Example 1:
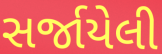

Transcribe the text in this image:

સર્જાયેલી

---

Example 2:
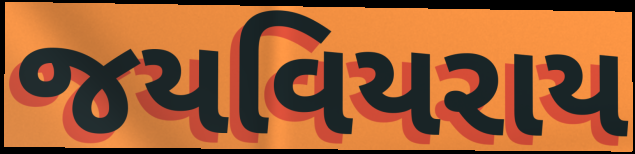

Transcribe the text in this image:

જયવિયરાય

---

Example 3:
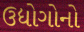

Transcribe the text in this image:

ઉદ્યોગોનો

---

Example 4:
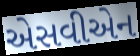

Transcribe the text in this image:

એસવીએન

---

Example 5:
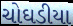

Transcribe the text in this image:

ચોઘડીયા